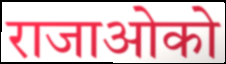
राजाओको